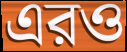
এরও